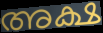
അക്ഷ